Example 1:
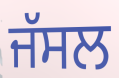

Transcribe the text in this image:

ਜੱਸਲ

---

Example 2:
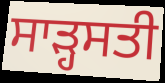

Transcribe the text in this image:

ਸਾੜ੍ਹਸਤੀ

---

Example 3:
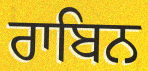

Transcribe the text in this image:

ਰਾਬਿਨ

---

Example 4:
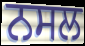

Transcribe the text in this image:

ਨਸਲ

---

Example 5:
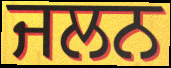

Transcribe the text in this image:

ਜਲਨ